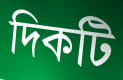
দিকটি